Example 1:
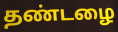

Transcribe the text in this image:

தண்டழை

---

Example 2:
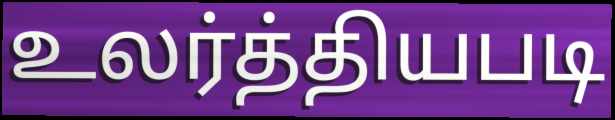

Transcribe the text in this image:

உலர்த்தியபடி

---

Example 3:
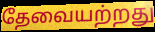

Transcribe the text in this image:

தேவையற்றது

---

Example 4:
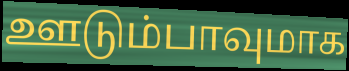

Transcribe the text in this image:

ஊடும்பாவுமாக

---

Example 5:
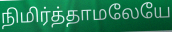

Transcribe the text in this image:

நிமிர்த்தாமலேயே